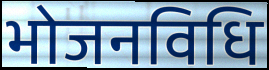
भोजनविधि